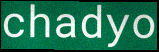
chadyo